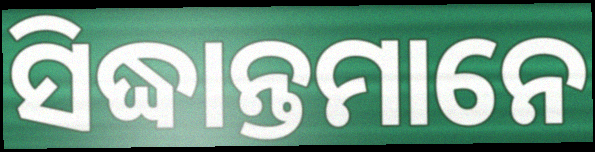
ସିଦ୍ଧାନ୍ତମାନେ